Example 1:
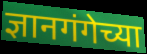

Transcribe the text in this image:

ज्ञानगंगेच्या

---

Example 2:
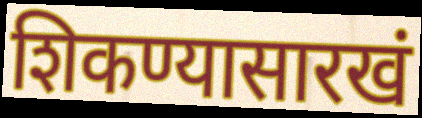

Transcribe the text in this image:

शिकण्यासारखं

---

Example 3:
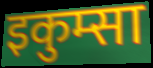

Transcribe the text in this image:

इकुम्सा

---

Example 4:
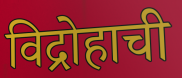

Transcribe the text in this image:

विद्रोहाची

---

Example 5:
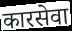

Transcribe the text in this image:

कारसेवा